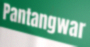
Pantangwar